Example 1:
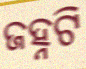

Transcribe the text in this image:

ଜହ୍ନଟି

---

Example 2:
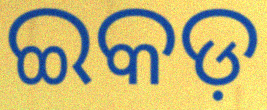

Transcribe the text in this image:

ଇକଡ଼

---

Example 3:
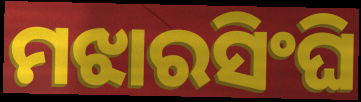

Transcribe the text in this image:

ମଝାରସିଂଘି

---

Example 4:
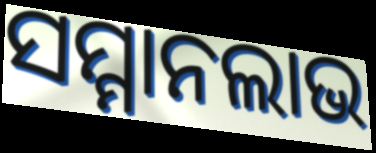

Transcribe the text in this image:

ସମ୍ମାନଲାଭ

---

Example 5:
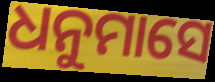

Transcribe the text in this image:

ଧନୁମାସେ